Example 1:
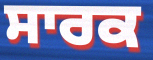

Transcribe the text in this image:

ਸਾਰਕ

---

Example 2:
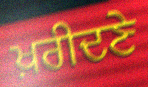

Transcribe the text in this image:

ਖ਼ਰੀਦਣੇ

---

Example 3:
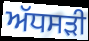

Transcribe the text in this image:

ਅੱਧਸੜੀ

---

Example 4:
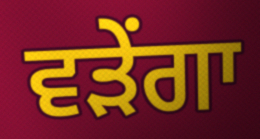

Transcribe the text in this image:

ਵੜੇਂਗਾ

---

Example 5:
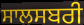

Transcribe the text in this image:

ਸਾਲਸਬਰੀ